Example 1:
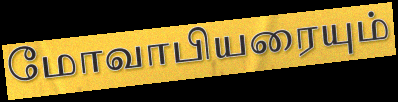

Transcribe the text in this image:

மோவாபியரையும்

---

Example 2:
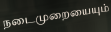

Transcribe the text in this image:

நடைமுறையையும்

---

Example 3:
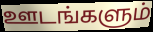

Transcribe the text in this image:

ஊடங்களும்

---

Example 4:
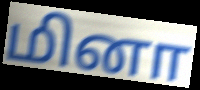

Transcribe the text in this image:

மினா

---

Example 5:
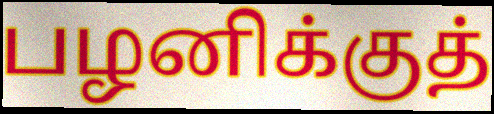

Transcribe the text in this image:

பழனிக்குத்